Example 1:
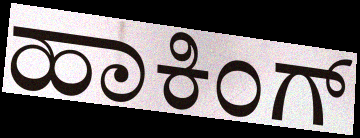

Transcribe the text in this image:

ಹಾಕಿಂಗ್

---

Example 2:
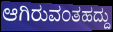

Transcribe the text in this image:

ಆಗಿರುವಂತಹದ್ದು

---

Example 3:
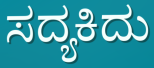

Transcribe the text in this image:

ಸದ್ಯಕಿದು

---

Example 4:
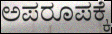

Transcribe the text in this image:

ಅಪರೂಪಕ್ಕೆ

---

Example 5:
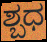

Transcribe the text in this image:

ಶ್ಬಧ